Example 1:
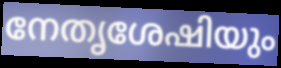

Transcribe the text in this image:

നേതൃശേഷിയും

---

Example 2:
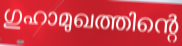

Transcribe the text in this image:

ഗുഹാമുഖത്തിന്റെ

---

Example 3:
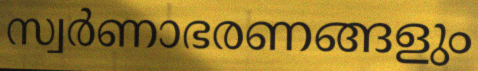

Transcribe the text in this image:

സ്വർണാഭരണങ്ങളും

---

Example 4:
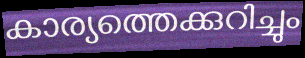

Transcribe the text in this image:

കാര്യത്തെക്കുറിച്ചും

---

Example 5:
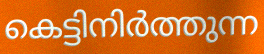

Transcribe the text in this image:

കെട്ടിനിർത്തുന്ന